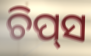
ଚିପ୍‌ସ